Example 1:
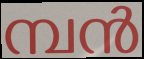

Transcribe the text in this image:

മ്പൻ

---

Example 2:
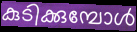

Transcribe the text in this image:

കുടിക്കുമ്പോൾ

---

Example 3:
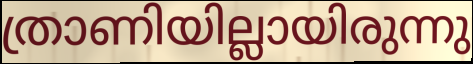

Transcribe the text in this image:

ത്രാണിയില്ലായിരുന്നു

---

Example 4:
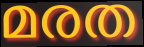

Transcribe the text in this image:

മരത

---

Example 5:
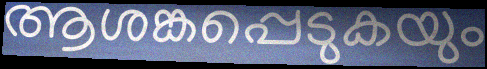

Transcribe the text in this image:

ആശങ്കപ്പെടുകയും